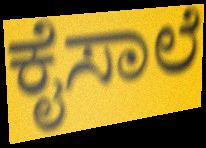
ಕೈಸಾಲೆ